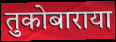
तुकोबाराया